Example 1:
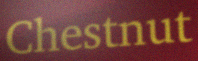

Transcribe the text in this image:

Chestnut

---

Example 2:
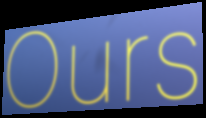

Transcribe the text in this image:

Ours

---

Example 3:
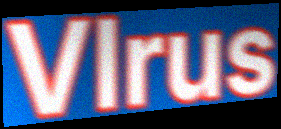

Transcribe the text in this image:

VIrus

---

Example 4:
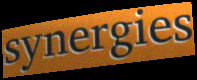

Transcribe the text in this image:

synergies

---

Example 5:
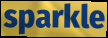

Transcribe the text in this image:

sparkle